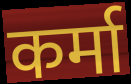
कर्मा